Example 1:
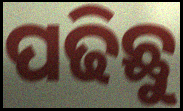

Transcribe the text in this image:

ପଢିଛୁ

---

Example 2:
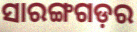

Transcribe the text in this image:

ସାରଙ୍ଗଗଡ଼ର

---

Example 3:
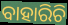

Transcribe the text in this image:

ବାହାରିଚି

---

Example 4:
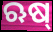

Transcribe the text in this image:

ଋଷ୍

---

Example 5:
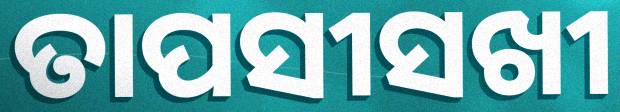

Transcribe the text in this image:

ତାପସୀସଖୀ